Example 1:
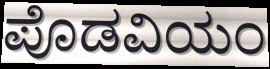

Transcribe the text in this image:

ಪೊಡವಿಯಂ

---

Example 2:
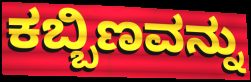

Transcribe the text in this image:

ಕಬ್ಬಿಣವನ್ನು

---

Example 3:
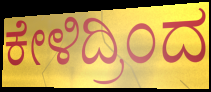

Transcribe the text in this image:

ಕೇಳಿದ್ರಿಂದ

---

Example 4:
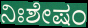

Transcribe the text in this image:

ನಿಃಶೇಷಂ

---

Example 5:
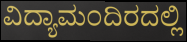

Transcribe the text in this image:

ವಿದ್ಯಾಮಂದಿರದಲ್ಲಿ